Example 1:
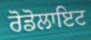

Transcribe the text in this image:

ਰੋਡੋਲਾਇਟ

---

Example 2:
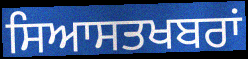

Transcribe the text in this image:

ਸਿਆਸਤਖਬਰਾਂ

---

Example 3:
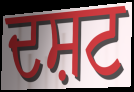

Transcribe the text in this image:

ਦਸ਼ਟ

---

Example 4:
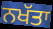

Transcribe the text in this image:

ਨਖੱਤਾ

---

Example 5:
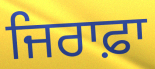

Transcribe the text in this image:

ਜਿਰਾਫ਼ਾ